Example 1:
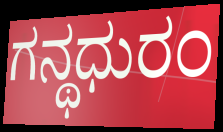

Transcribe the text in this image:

ಗನ್ಥಧುರಂ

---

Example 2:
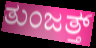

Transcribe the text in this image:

ತುಂಜತ್ತ್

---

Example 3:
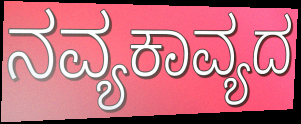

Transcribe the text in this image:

ನವ್ಯಕಾವ್ಯದ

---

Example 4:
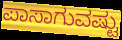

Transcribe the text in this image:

ಪಾಸಾಗುವಷ್ಟು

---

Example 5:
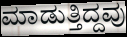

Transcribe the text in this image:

ಮಾಡುತ್ತಿದ್ದವು